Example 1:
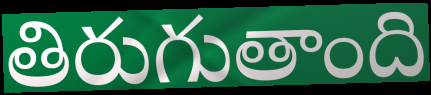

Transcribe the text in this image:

తిరుగుతాంది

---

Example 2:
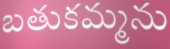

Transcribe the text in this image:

బతుకమ్మను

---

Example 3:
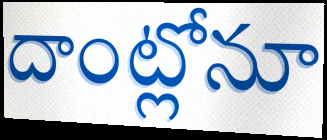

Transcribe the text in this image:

దాంట్లోనూ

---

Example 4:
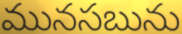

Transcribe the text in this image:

మునసబును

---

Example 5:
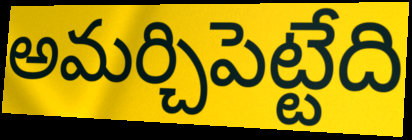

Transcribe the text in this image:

అమర్చిపెట్టేది